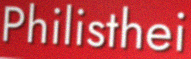
Philisthei